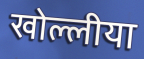
खोल्लीया